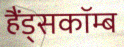
हैंड्सकॉम्ब